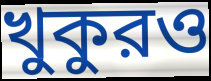
খুকুরও